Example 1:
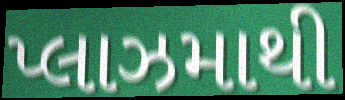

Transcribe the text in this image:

પ્લાઝમાથી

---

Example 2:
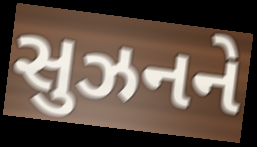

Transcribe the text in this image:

સુઝનને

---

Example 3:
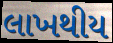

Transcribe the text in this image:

લાખથીય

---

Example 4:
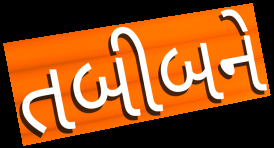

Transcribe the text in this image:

તબીબને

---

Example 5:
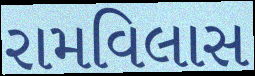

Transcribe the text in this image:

રામવિલાસ